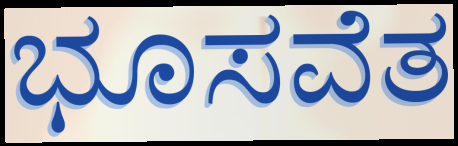
ಭೂಸವೆತ